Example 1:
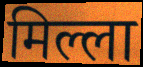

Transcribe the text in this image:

मिल्ला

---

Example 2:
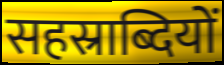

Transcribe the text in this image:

सहस्राब्दियों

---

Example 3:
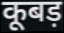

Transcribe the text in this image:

कूबड़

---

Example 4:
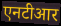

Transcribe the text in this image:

एनटीआर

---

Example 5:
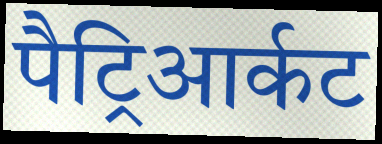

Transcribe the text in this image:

पैट्रिआर्कट